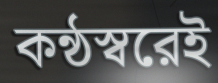
কন্ঠস্বরেই